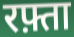
रफ़्ता